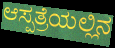
ಆಸ್ಪತ್ರೆಯಲ್ಲಿನ